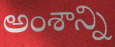
అంశాన్ని